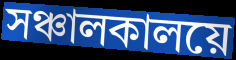
সঞ্চালকালয়ে